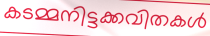
കടമ്മനിട്ടക്കവിതകൾ